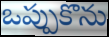
ఒప్పుకొను